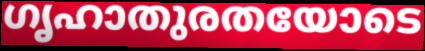
ഗൃഹാതുരതയോടെ